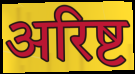
अरिष्ट